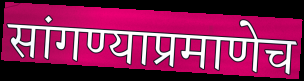
सांगण्याप्रमाणेच